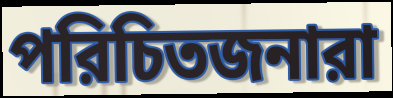
পরিচিতজনারা